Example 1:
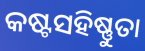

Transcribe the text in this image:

କଷ୍ଟସହିଷ୍ଣୁତା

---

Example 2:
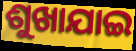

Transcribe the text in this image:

ଶୁଖାଯାଇ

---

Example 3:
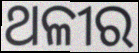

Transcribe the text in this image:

ଥଳୀର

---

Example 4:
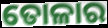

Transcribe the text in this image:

ତୋଳାର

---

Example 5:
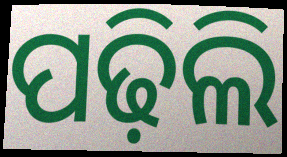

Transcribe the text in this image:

ପଢ଼ିଲି